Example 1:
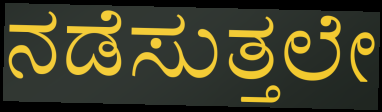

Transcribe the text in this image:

ನಡೆಸುತ್ತಲೇ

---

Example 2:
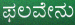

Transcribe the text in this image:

ಫಲವೇನು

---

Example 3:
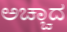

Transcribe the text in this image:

ಅಚ್ಚಾದ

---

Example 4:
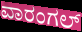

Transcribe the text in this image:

ವಾರಂಗಲ್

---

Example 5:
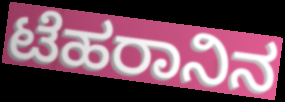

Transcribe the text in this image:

ಟೆಹರಾನಿನ